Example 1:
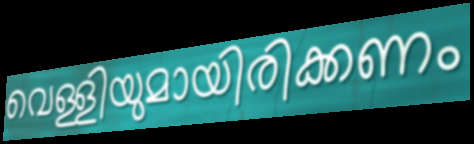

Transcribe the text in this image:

വെള്ളിയുമായിരിക്കണം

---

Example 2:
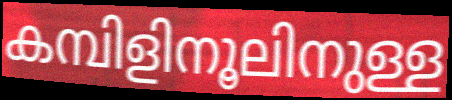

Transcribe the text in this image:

കമ്പിളിനൂലിനുള്ള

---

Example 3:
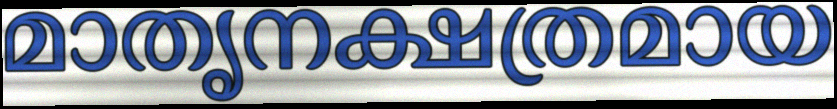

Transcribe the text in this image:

മാതൃനക്ഷത്രമായ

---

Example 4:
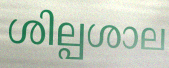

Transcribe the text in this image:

ശില്പശാല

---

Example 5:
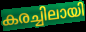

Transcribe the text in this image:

കരച്ചിലായി